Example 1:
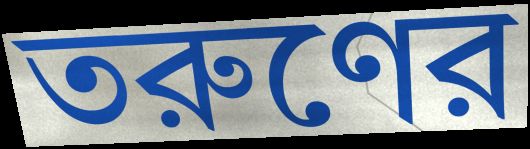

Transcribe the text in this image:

তরুণের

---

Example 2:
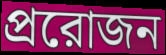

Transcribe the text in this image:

প্ররোজন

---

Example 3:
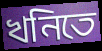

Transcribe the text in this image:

খনিতে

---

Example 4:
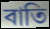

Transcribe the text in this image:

বাতি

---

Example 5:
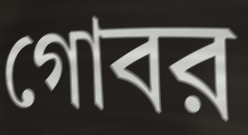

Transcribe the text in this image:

গোবর